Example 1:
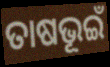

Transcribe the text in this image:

ତାଷଭୂଇଁ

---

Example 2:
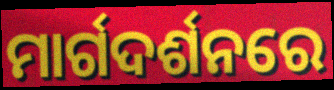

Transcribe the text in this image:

ମାର୍ଗଦର୍ଶନରେ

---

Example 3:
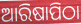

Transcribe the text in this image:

ଆରିଷାପିଠା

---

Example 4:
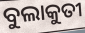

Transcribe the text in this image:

ବୁଲାକୁତୀ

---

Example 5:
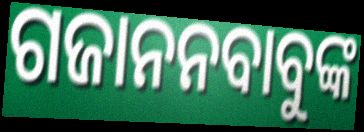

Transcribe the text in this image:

ଗଜାନନବାବୁଙ୍କ